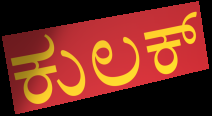
ಕುಲಕ್